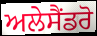
ਅਲੇਸੈਂਡਰੋ